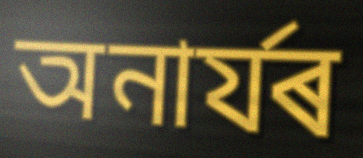
অনাৰ্যৰ